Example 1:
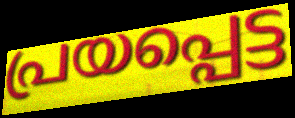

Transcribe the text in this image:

പ്രയപ്പെട്ട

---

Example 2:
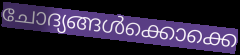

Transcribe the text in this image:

ചോദ്യങ്ങൾക്കൊക്കെ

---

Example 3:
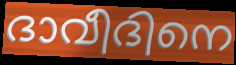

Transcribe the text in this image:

ദാവീദിനെ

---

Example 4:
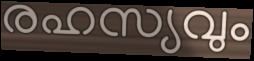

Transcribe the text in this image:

രഹസ്യവും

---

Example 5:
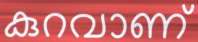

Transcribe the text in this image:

കുറവാണ്